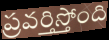
ప్రవర్తిస్తోంది